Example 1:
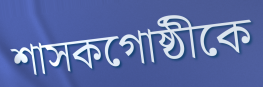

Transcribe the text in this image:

শাসকগোষ্ঠীকে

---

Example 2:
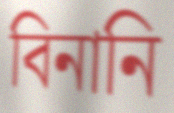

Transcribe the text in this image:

বিনানি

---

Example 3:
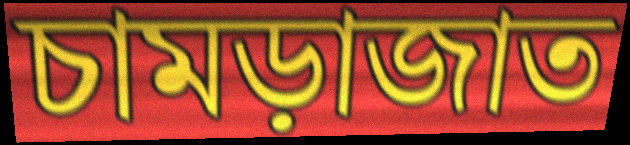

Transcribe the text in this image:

চামড়াজাত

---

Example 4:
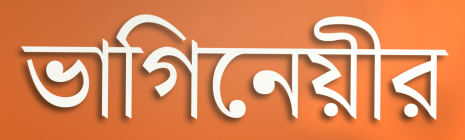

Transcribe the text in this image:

ভাগিনেয়ীর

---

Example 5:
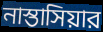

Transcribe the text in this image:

নাস্তাসিয়ার